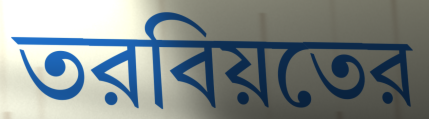
তরবিয়তের